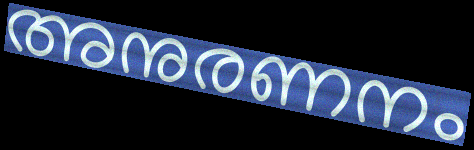
അനുരണനം